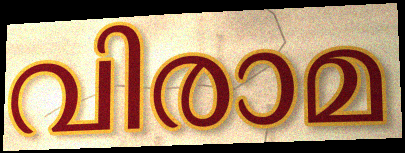
വിരാമ